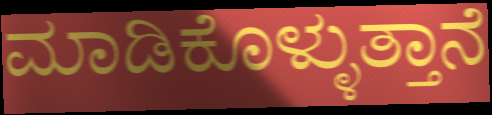
ಮಾಡಿಕೊಳ್ಳುತ್ತಾನೆ